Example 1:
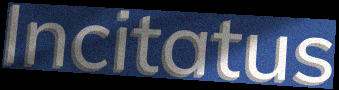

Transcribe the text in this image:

Incitatus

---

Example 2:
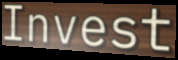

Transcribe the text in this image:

Invest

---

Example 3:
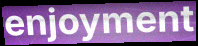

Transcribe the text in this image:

enjoyment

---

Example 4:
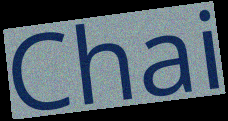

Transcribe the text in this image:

Chai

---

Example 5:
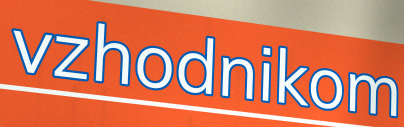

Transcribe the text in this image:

vzhodnikom